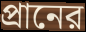
প্রানের